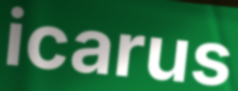
icarus